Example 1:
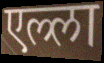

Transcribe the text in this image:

एल्ला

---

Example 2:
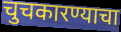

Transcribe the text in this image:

चुचकारण्याचा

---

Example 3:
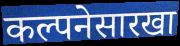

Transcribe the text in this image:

कल्पनेसारखा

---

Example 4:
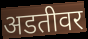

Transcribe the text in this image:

अडतीवर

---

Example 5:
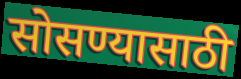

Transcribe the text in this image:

सोसण्यासाठी